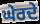
ਘੇਰਦੇ